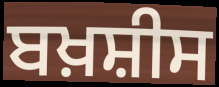
ਬਖ਼ਸ਼ੀਸ